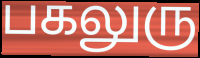
பகலுரு